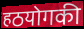
हठयोगकी